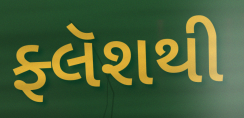
ફ્લૅશથી